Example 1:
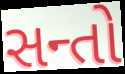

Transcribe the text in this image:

સન્તો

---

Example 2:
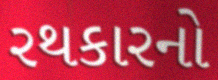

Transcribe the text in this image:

રથકારનો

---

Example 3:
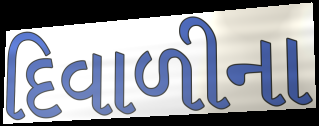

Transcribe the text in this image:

દિવાળીના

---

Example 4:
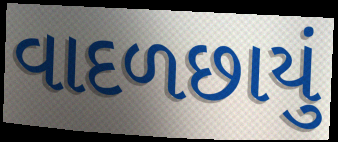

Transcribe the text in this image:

વાદળછાયું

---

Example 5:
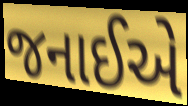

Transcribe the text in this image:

જનાઈએ